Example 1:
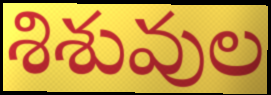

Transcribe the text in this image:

శిశువుల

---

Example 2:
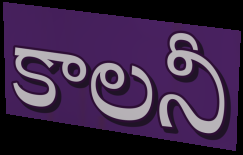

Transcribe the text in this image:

కాలనీ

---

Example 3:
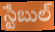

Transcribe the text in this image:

స్టేబుల్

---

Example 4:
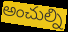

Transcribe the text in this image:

అంచుల్ని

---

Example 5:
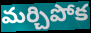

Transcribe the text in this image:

మర్చిపోక